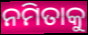
ନମିତାକୁ